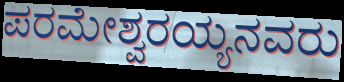
ಪರಮೇಶ್ವರಯ್ಯನವರು